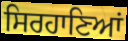
ਸਿਰਹਾਣਿਆਂ